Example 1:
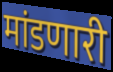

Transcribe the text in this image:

मांडणारी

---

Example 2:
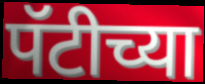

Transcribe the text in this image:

पॅटीच्या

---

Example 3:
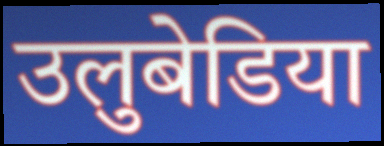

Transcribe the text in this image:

उलुबेडिया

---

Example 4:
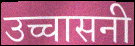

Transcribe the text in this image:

उच्चासनी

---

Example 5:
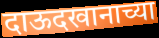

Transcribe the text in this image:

दाऊदखानाच्या